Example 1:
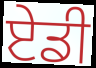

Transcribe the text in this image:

ਏਡੀ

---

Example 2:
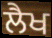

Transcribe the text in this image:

ਲੈਖ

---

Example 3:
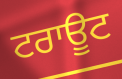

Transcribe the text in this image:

ਟਰਾਊਟ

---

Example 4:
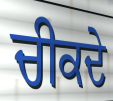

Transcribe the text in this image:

ਚੀਕਦੇ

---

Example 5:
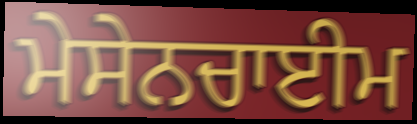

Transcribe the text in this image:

ਮੇਸੇਨਚਾਈਮ